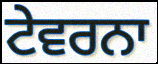
ਟੇਵਰਨਾ